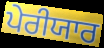
ਪੇਰੀਯਾਰ